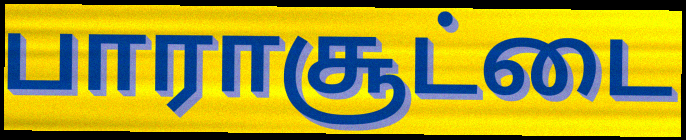
பாராசூட்டை